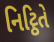
નિટ્ઠિતે